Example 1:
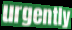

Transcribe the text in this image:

urgently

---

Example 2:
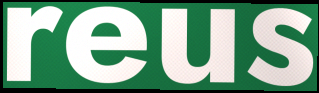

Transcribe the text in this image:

reus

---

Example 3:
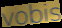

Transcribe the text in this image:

vobis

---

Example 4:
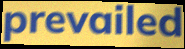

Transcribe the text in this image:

prevailed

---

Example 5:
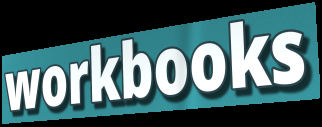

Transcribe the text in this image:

workbooks